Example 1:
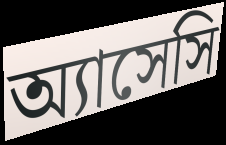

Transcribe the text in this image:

অ্যাসেসি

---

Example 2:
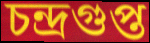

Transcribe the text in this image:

চন্দ্রগুপ্ত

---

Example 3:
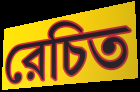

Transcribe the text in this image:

রেচিত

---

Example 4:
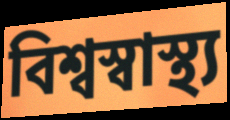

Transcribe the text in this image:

বিশ্বস্বাস্থ্য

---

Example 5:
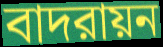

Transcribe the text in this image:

বাদরায়ন